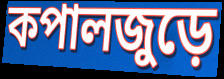
কপালজুড়ে